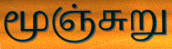
மூஞ்சுறு